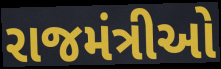
રાજમંત્રીઓ